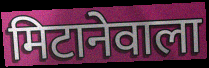
मिटानेवाला